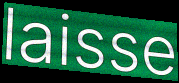
laisse